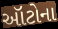
ઑટોના